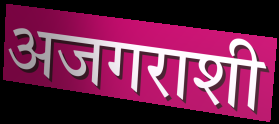
अजगराशी